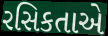
રસિકતાએ